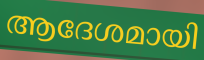
ആദേശമായി